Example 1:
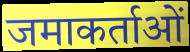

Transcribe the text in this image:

जमाकर्ताओं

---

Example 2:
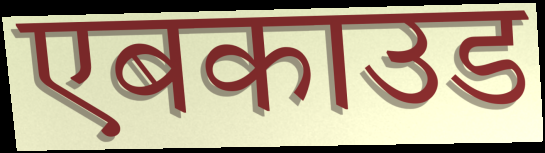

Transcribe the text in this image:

एबकाउड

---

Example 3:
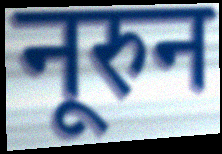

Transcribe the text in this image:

नूरुन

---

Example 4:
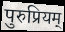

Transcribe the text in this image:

पुरुप्रियम्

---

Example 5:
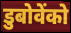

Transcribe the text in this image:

डुबोवेंको